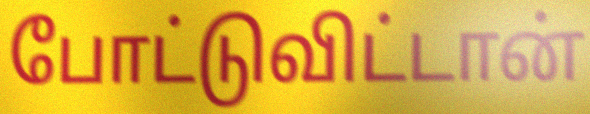
போட்டுவிட்டான்